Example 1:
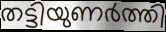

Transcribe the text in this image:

തട്ടിയുണർത്തി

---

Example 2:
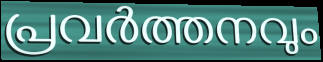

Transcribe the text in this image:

പ്രവർത്തനവും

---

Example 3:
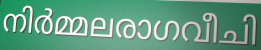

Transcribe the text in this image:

നിർമ്മലരാഗവീചി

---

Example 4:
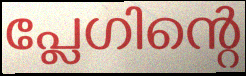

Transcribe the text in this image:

പ്ലേഗിന്റെ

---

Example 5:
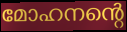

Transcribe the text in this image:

മോഹനന്റെ